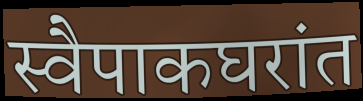
स्वैपाकघरांत